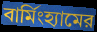
বার্মিংহ্যামের